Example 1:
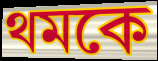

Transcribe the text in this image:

থমকে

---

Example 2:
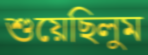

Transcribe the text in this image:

শুয়েছিলুম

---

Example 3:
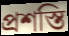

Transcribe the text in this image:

প্রশস্তি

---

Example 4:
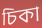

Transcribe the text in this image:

চিকা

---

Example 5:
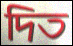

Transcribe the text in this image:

দিত